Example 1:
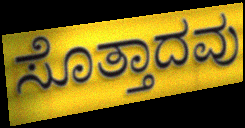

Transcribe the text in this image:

ಸೊತ್ತಾದವು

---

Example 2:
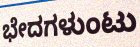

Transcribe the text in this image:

ಭೇದಗಳುಂಟು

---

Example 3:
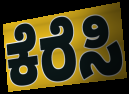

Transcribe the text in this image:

ಕೆರೆಸಿ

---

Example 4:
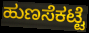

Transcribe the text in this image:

ಹುಣಸೆಕಟ್ಟೆ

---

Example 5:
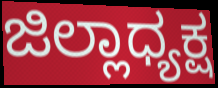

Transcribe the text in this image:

ಜಿಲ್ಲಾಧ್ಯಕ್ಷ